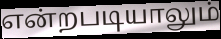
என்றபடியாலும்